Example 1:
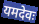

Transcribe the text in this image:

यमदेवः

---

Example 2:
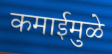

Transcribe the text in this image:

कमाईमुळे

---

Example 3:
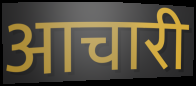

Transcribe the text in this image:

आचारी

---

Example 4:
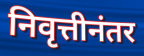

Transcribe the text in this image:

निवृत्तीनंतर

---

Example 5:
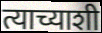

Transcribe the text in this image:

त्याच्याशी